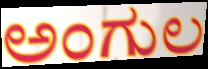
ಅಂಗುಲ